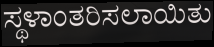
ಸ್ಥಳಾಂತರಿಸಲಾಯಿತು